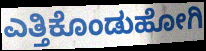
ಎತ್ತಿಕೊಂಡುಹೋಗಿ